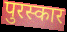
पुरस्कार